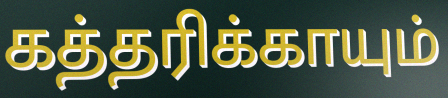
கத்தரிக்காயும்